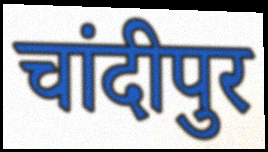
चांदीपुर